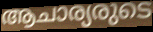
ആചാര്യരുടെ